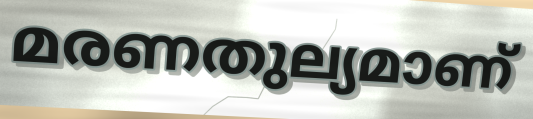
മരണതുല്യമാണ്